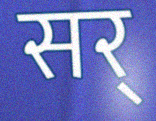
सर्